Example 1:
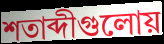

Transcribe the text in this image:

শতাব্দীগুলোয়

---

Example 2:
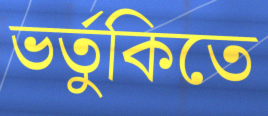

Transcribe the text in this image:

ভর্তুকিতে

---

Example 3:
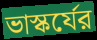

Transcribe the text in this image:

ভাস্কর্যের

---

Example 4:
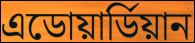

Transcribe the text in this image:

এডোয়ার্ডিয়ান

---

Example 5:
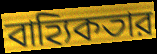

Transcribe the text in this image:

বাহ্যিকতার